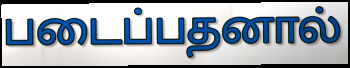
படைப்பதனால்